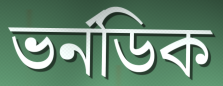
ভর্নডিক